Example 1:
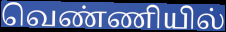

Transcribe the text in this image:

வெண்ணியில்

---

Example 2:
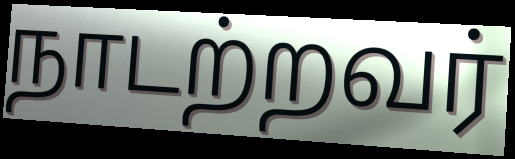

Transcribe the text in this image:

நாடற்றவர்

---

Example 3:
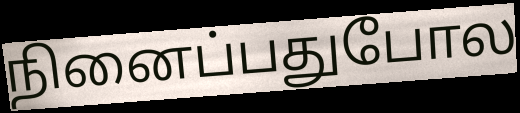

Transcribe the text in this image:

நினைப்பதுபோல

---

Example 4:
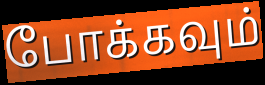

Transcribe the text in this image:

போக்கவும்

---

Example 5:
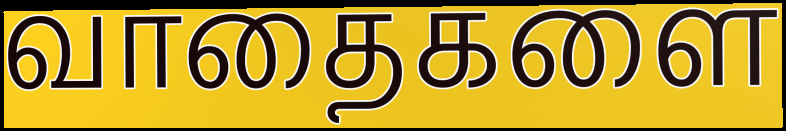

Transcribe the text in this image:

வாதைகளை